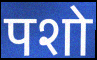
पशो